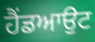
ਹੈਂਡਆਉਟ